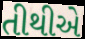
તીથીએ